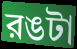
রঙটা